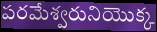
పరమేశ్వరునియొక్క